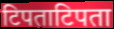
टिपताटिपता